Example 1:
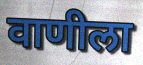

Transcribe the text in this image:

वाणीला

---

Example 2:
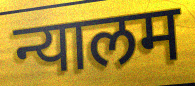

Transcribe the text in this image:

न्यालम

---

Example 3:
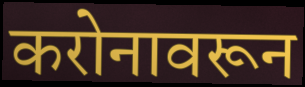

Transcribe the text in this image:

करोनावरून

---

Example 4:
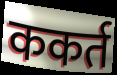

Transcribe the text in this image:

ककर्त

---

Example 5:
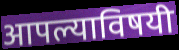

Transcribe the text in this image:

आपल्याविषयी